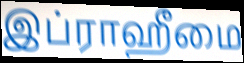
இப்ராஹீமை